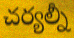
చర్యల్నీ